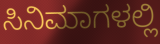
ಸಿನಿಮಾಗಳಲ್ಲಿ